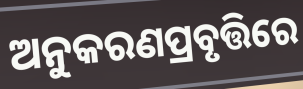
ଅନୁକରଣପ୍ରବୃତ୍ତିରେ